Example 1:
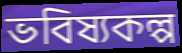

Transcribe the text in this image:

ভবিষ্যকল্প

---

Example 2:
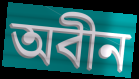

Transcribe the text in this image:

অবীন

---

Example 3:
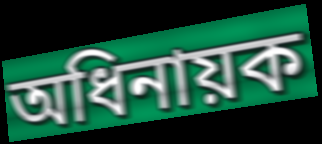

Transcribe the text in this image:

অধিনায়ক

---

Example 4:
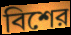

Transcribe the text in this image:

বিশের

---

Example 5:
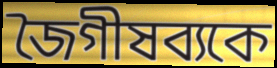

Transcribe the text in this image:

জৈগীষব্যকে